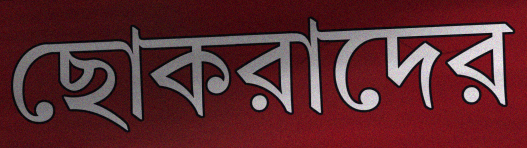
ছোকরাদের